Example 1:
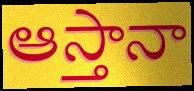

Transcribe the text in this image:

ఆస్తానా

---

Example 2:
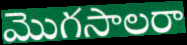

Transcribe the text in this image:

మొగసాలరా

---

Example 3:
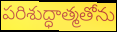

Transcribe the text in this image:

పరిశుద్ధాత్మతోను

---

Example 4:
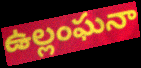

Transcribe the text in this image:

ఉల్లంఘనా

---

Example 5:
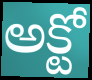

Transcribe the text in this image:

అక్టో